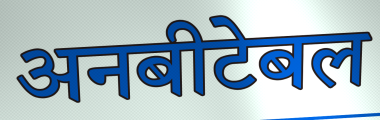
अनबीटेबल